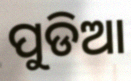
ପୁଡିଆ